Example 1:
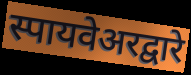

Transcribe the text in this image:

स्पायवेअरद्वारे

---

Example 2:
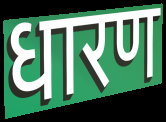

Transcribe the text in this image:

धारण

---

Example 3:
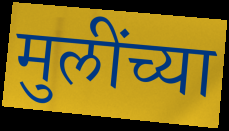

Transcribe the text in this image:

मुलींच्या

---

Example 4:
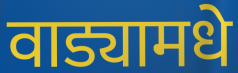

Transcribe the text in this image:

वाड्यामधे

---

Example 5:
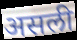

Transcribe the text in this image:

असली